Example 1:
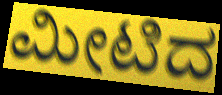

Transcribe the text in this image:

ಮೀಟಿದ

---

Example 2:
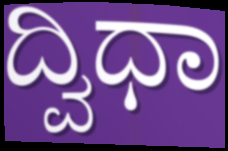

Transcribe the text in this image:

ದ್ವಿಧಾ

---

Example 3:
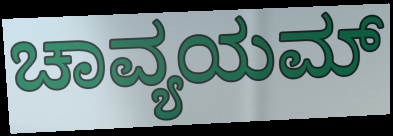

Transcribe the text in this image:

ಚಾವ್ಯಯಮ್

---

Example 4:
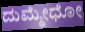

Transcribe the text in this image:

ದುಮ್ಮೇಧೋ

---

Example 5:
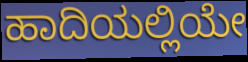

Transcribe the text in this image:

ಹಾದಿಯಲ್ಲಿಯೇ